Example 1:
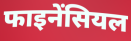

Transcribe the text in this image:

फाइनेंसियल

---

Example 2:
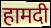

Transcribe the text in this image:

हामदी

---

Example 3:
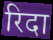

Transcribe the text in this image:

रिदा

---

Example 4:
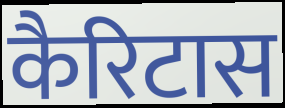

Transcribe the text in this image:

कैरिटास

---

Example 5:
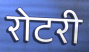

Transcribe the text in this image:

रोटरी